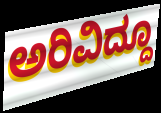
ಅರಿವಿದ್ದೂ